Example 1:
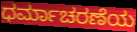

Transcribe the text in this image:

ಧರ್ಮಾಚರಣೆಯ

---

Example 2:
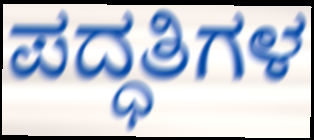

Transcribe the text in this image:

ಪದ್ಧತಿಗಳ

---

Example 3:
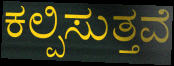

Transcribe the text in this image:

ಕಲ್ಪಿಸುತ್ತವೆ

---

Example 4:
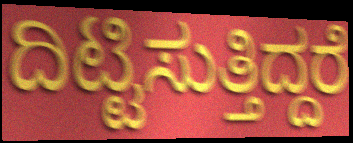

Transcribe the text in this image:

ದಿಟ್ಟಿಸುತ್ತಿದ್ದರೆ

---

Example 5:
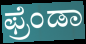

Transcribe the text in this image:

ಫ್ರೆಂಡಾ